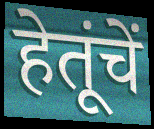
हेतूंचें